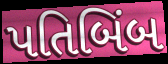
પતિબિંબ